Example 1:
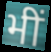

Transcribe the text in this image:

भीं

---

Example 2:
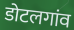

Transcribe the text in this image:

डोटलगांव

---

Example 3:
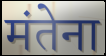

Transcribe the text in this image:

मंतेना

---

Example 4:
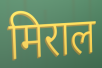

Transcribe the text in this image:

मिराल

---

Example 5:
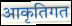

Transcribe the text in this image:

आकृतिगत